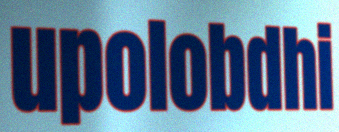
upolobdhi